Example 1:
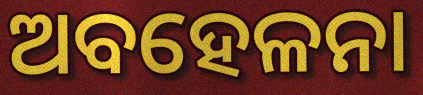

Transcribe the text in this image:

ଅବହେଳନା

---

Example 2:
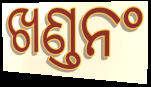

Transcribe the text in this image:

ଖଣ୍ଡନଂ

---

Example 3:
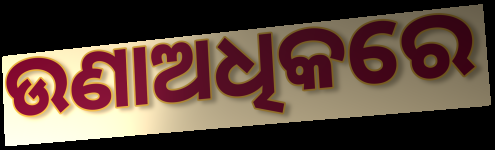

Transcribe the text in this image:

ଉଣାଅଧିକରେ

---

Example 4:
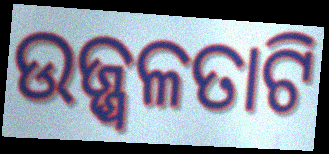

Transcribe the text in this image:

ଉଜ୍ଜ୍ୱଳତାଟି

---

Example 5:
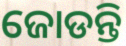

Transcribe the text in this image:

ଜୋଡନ୍ତି